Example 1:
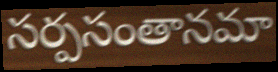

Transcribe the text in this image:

సర్పసంతానమా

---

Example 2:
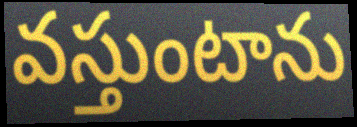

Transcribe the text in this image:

వస్తుంటాను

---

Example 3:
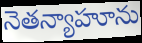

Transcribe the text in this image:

నెతన్యాహూను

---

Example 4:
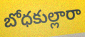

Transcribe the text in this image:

బోధకుల్లారా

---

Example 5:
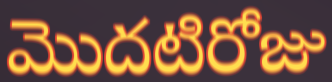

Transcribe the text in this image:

మొదటిరోజు